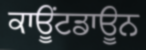
ਕਾਊਂਟਡਾਊਨ